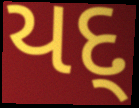
યદ્